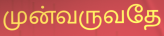
முன்வருவதே